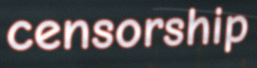
censorship